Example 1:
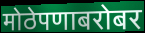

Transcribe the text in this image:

मोठेपणाबरोबर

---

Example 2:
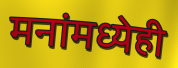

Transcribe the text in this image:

मनांमध्येही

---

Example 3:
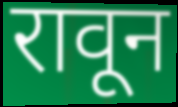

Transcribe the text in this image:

रावून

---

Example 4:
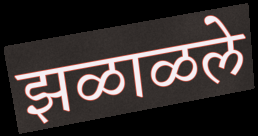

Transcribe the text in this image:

झळाळले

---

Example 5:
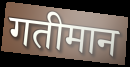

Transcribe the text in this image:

गतीमान